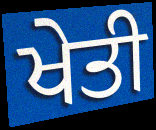
ਖੇਤੀ